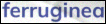
ferruginea